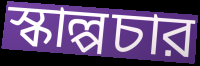
স্কাল্পচার